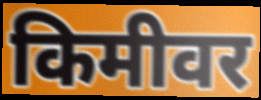
किमीवर